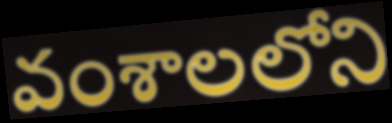
వంశాలలోని